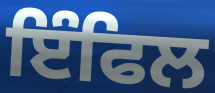
ਇੰਫਿਲ